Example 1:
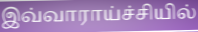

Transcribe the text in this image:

இவ்வாராய்ச்சியில்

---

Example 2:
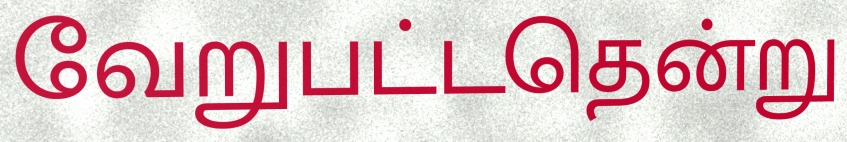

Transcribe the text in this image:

வேறுபட்டதென்று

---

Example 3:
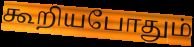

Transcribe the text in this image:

கூறியபோதும்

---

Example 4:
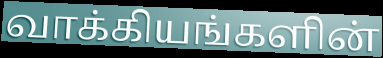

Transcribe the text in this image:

வாக்கியங்களின்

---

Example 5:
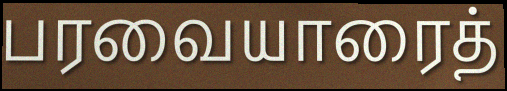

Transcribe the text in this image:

பரவையாரைத்